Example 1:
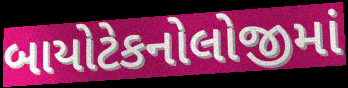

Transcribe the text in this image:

બાયોટેકનોલોજીમાં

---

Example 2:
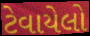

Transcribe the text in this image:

ટેવાયેલો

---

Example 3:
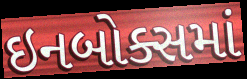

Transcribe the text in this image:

ઇનબોક્સમાં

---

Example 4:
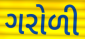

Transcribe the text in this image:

ગરોળી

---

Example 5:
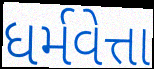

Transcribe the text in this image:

ધર્મવેત્તા